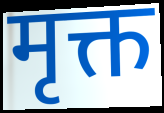
मृक्त